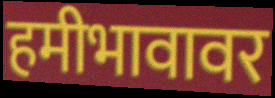
हमीभावावर